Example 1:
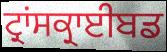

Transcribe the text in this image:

ਟ੍ਰਾਂਸਕ੍ਰਾਈਬਡ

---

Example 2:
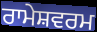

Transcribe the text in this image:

ਰਾਮੇਸ਼ਵਰਮ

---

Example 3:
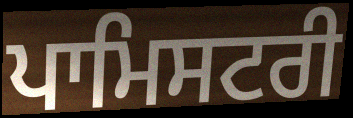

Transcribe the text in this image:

ਪਾਮਿਸਟਰੀ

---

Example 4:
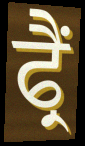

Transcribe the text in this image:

ਫ੍ਰੈਂ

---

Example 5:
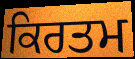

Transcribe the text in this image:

ਕਿਰਤਮ